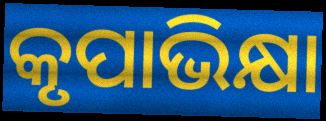
କୃପାଭିକ୍ଷା